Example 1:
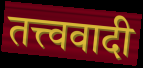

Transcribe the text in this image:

तत्त्ववादी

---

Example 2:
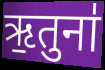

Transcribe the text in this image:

ऋ॒तुना॑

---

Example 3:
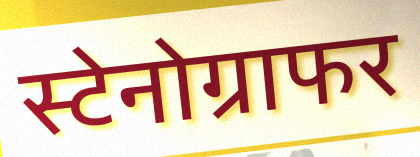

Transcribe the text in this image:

स्टेनोग्राफर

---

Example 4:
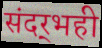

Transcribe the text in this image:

संदर्भही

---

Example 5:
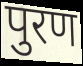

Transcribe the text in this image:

पुरण